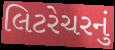
લિટરેચરનું